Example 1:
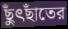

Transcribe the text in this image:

ছুঁৎছাঁতের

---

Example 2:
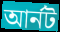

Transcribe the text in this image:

আর্নট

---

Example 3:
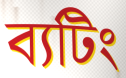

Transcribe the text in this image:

ব্যটিং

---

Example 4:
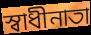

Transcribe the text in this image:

স্বাধীনাতা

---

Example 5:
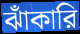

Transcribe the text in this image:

ঝাঁকারি